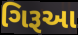
ગિરૂઆ